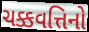
ચક્કવત્તિનો